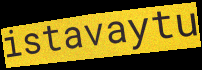
istavaytu